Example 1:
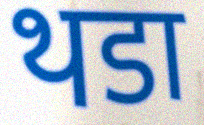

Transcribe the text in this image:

थडा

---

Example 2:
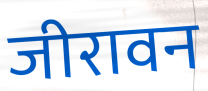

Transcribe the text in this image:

जीरावन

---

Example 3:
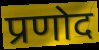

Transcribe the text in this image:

प्रणोद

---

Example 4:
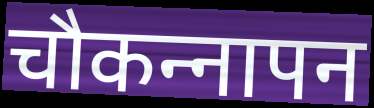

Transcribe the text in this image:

चौकन्नापन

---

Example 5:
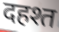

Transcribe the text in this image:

दहश्त